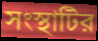
সংস্থাটির